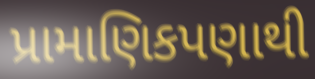
પ્રામાણિકપણાથી